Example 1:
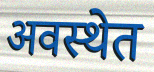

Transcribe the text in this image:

अवस्थेत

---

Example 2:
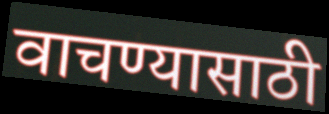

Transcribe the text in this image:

वाचण्यासाठी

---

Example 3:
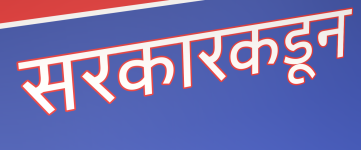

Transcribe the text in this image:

सरकारकडून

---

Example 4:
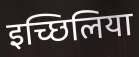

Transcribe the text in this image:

इच्छिलिया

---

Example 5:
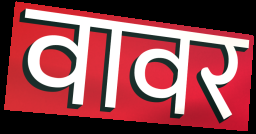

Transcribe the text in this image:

वावर